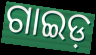
ଗାଇଡ଼